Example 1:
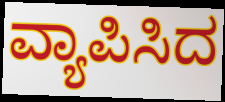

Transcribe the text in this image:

ವ್ಯಾಪಿಸಿದ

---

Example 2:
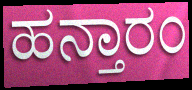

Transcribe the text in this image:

ಹನ್ತಾರಂ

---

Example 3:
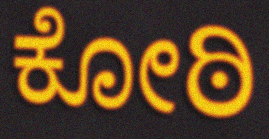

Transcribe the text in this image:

ಕೋಠಿ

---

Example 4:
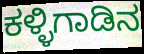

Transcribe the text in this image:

ಕಳ್ಳಿಗಾಡಿನ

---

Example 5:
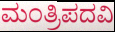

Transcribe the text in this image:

ಮಂತ್ರಿಪದವಿ